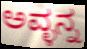
ಅವ್ಳನ್ನ